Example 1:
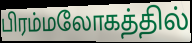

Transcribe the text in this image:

பிரம்மலோகத்தில்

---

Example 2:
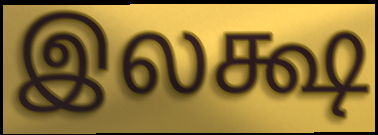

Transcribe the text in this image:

இலக்ஷ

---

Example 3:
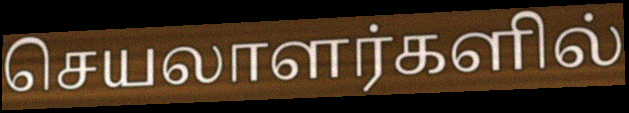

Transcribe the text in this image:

செயலாளர்களில்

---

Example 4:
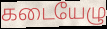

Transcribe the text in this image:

கடையேழு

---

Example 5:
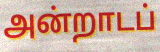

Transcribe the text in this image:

அன்றாடப்